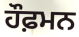
ਹੌਫ਼ਮਨ